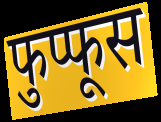
फुप्फूस